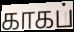
காகப்